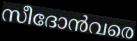
സീദോൻവരെ